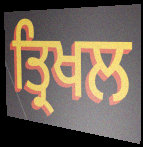
ਤ੍ਰਿਖਲ